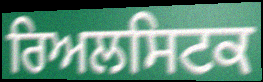
ਰਿਅਲਸਿਟਕ